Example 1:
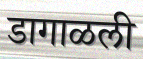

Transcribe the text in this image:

डागाळली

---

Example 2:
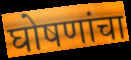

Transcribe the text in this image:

घोषणांचा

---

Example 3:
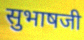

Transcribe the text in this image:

सुभाषजी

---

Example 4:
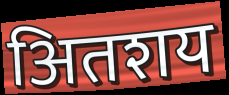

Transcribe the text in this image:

अितशय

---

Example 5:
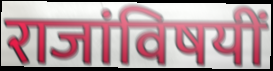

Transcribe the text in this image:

राजांविषयीं